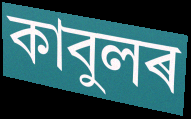
কাবুলৰ